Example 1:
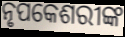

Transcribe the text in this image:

ନୃପକେଶରୀଙ୍କ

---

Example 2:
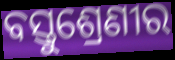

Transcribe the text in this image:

ବସ୍ତୁଶ୍ରେଣୀର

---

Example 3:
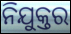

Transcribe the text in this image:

ନିଯୁକ୍ତର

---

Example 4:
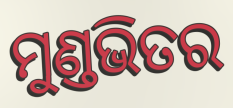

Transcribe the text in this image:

ମୁଣ୍ଡଭିତର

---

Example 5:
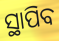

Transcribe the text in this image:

ସ୍ଥାପିବ